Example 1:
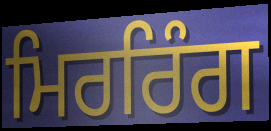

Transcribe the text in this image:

ਮਿਰਰਿੰਗ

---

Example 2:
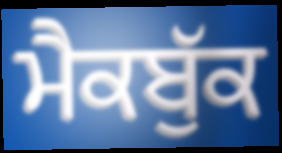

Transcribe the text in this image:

ਮੈਕਬੁੱਕ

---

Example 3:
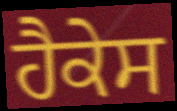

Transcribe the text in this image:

ਹੈਕੇਸ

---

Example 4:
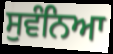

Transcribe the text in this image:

ਸੁਵੰਨਿਆ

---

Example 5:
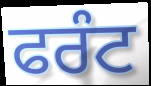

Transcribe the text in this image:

ਫਰੰਟ